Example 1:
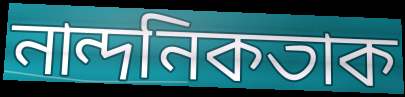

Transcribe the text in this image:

নান্দনিকতাক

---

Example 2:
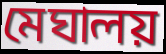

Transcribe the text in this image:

মেঘালয়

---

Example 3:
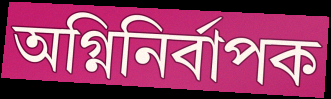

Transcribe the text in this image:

অগ্নিনিৰ্বাপক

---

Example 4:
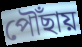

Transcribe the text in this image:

পৌঁছায়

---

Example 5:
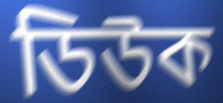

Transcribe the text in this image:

ডিউক